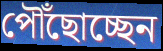
পৌঁছোচ্ছেন